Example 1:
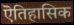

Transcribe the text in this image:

ऎतिहासिक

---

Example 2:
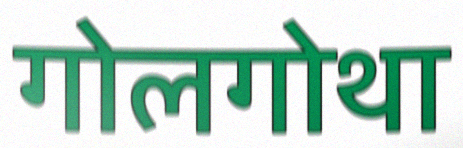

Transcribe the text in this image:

गोलगोथा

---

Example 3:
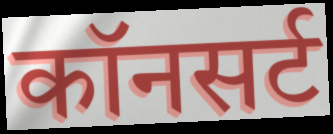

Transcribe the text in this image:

कॉनसर्ट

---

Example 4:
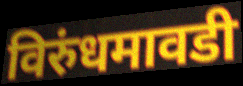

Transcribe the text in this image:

विरुंधमावडी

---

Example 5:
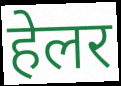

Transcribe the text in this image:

हेलर